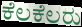
ಕೆಲಕೆಲರು